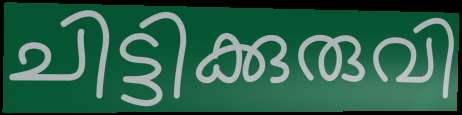
ചിട്ടിക്കുരുവി